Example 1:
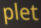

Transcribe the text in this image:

plet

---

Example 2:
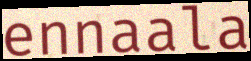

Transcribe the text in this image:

ennaala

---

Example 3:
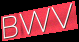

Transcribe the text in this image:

BWV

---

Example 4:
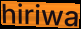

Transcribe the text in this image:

hiriwa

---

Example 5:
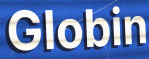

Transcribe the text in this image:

Globin